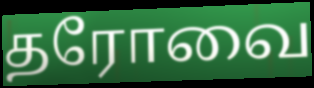
தரோவை